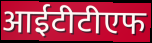
आईटीटीएफ